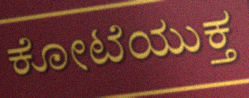
ಕೋಟೆಯುಕ್ತ